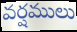
వర్షములు